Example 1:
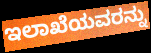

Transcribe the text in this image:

ಇಲಾಖೆಯವರನ್ನು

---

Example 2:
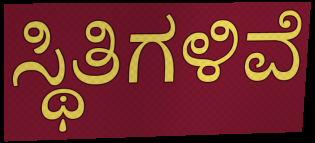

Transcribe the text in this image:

ಸ್ಥಿತಿಗಳಿವೆ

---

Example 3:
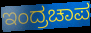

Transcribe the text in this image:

ಇಂದ್ರಚಾಪ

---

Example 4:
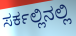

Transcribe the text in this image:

ಸರ್ಕಲ್ಲಿನಲ್ಲಿ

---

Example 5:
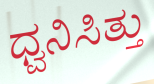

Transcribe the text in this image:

ಧ್ವನಿಸಿತ್ತು